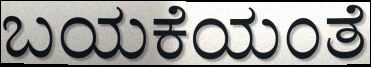
ಬಯಕೆಯಂತೆ